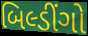
બિલ્ડીંગો